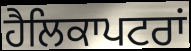
ਹੈਲਿਕਾਪਟਰਾਂ